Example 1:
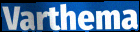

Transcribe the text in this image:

Varthema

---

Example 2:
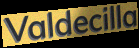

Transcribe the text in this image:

Valdecilla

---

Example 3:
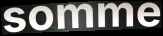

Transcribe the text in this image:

somme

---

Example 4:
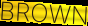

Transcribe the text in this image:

BROWN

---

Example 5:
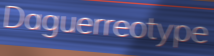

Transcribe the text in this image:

Daguerreotype